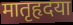
मातृहृदया